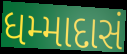
ધમ્માદાસં